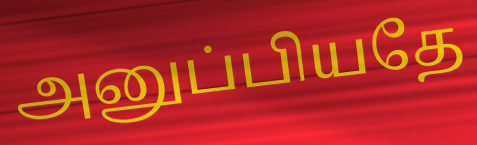
அனுப்பியதே